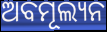
ଅବମୂଲ୍ୟନ